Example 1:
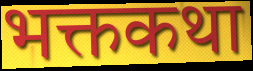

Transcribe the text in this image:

भक्तकथा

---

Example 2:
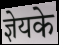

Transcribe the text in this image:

ज्ञेयके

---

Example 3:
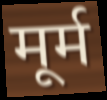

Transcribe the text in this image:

मूर्म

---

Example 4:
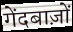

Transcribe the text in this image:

गेंदबाज़ों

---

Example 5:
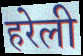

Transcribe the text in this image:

हरेली